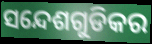
ସନ୍ଦେଶଗୁଡିକର